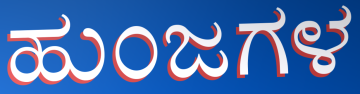
ಹುಂಜಗಳ